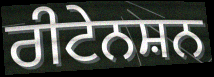
ਰੀਟੇਨਸ਼ਨ